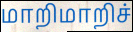
மாறிமாறிச்